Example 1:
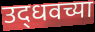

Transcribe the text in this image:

उद्धवच्या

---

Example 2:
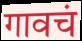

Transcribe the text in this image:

गावचं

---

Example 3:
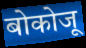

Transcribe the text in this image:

बोकोजू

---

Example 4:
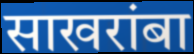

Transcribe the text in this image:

साखरांबा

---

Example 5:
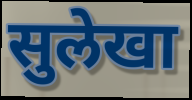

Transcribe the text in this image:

सुलेखा